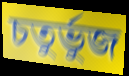
চতুর্ভুজ